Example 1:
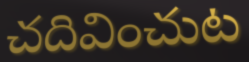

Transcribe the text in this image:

చదివించుట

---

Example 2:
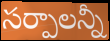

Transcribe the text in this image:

సర్పాలన్నీ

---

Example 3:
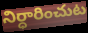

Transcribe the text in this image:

నిర్ధారించుట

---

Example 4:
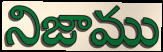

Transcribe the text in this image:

నిజాము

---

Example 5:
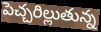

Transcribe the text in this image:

పెచ్చరిల్లుతున్న